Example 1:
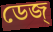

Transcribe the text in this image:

ডেজ্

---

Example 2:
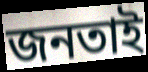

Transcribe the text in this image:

জনতাই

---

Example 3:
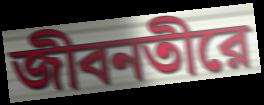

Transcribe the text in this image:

জীবনতীরে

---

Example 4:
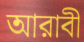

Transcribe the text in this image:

আরাবী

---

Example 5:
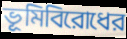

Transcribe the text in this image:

ভূমিবিরোধের